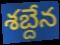
శబ్దేన